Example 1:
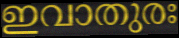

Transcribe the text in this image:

ഇവാതുരഃ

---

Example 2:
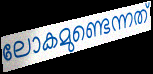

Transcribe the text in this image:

ലോകമുണ്ടെന്നത്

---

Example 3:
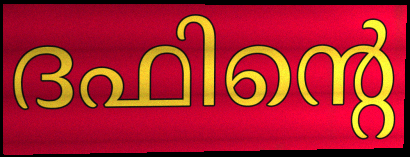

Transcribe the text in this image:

ദഫിന്റെ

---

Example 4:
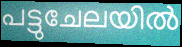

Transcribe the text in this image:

പട്ടുചേലയിൽ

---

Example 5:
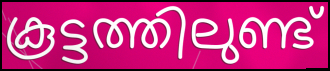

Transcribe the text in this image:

കൂട്ടത്തിലുണ്ട്